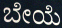
ಬೇಯೆ